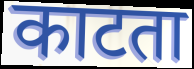
काटता